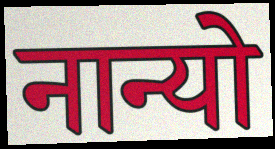
नान्यो